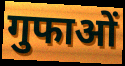
गुफाओं